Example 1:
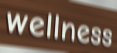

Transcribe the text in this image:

wellness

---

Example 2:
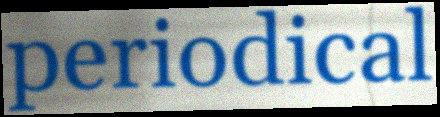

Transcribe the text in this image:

periodical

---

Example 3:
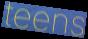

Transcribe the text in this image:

teens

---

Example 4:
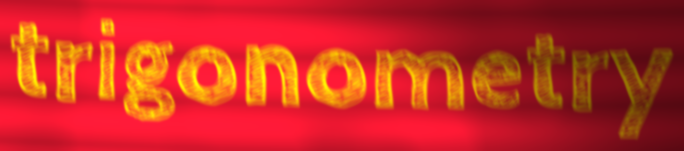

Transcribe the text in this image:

trigonometry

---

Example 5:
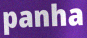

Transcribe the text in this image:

panha